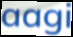
aagi